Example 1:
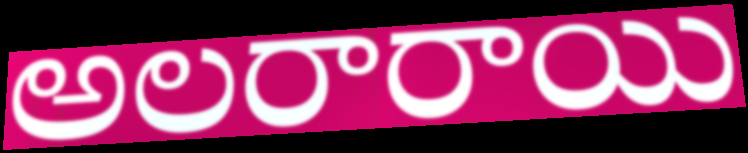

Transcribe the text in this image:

అలరారాయి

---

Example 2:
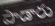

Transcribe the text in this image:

పాడారు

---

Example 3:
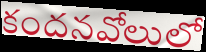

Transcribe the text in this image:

కందనవోలులో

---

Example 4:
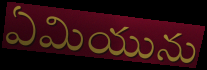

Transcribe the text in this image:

ఏమియును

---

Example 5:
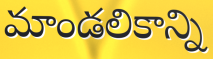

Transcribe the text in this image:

మాండలికాన్ని